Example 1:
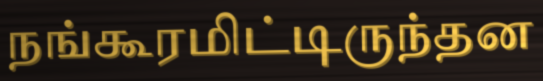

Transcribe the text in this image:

நங்கூரமிட்டிருந்தன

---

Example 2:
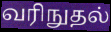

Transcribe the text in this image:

வரிநுதல்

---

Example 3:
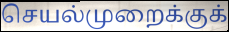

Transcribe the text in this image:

செயல்முறைக்குக்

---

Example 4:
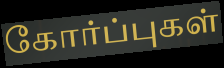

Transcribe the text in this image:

கோர்ப்புகள்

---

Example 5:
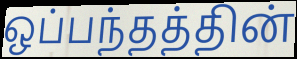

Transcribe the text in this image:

ஒப்பந்தத்தின்